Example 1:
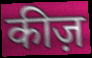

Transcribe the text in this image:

कीज़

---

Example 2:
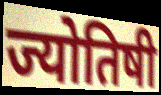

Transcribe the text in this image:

ज्योतिषी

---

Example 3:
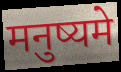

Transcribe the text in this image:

मनुष्यमे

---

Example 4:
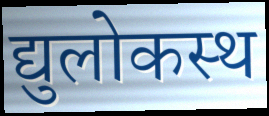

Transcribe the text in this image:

द्युलोकस्थ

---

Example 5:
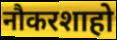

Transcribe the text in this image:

नौकरशाहो